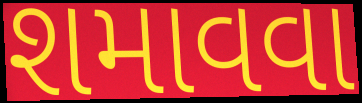
શમાવવા